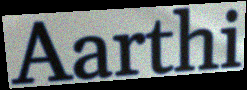
Aarthi